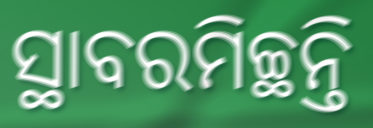
ସ୍ଥାବରମିଚ୍ଛନ୍ତି